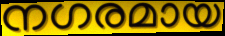
നഗരമായ